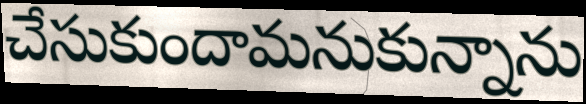
చేసుకుందామనుకున్నాను